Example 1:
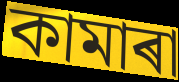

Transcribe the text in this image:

কামাৰা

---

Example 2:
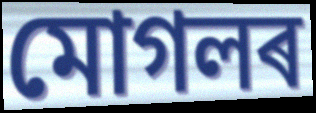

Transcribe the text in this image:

মোগলৰ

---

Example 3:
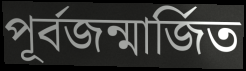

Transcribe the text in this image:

পূৰ্বজন্মাৰ্জিত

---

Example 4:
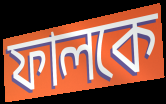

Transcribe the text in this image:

ফালকে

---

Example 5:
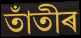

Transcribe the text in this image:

তাঁতীৰ